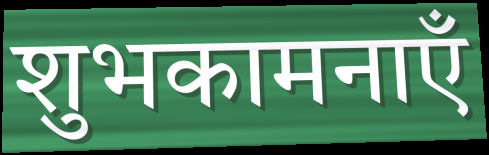
शुभकामनाएँ